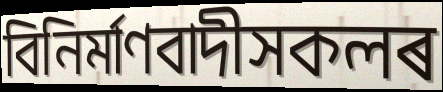
বিনিৰ্মাণবাদীসকলৰ